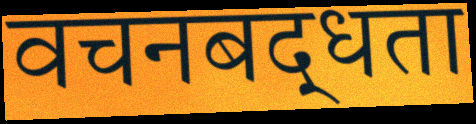
वचनबद्धता